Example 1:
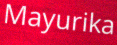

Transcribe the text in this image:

Mayurika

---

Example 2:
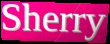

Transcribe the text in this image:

Sherry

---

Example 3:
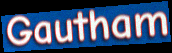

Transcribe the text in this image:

Gautham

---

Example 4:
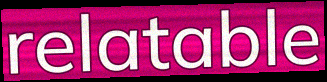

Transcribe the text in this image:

relatable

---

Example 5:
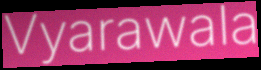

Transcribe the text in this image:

Vyarawala